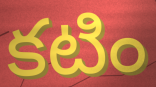
కటిం